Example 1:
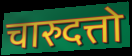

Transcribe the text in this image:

चारुदत्तो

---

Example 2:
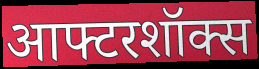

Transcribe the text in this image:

आफ्टरशॉक्स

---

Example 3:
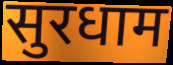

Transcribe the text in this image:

सुरधाम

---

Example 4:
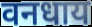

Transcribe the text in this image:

वनधाय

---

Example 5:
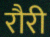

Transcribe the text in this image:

रौरी